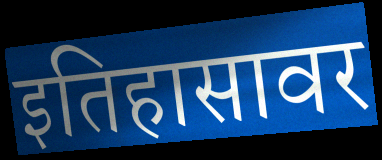
इतिहासावर